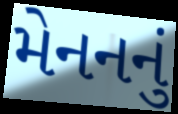
મેનનનું